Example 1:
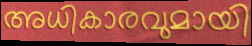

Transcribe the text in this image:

അധികാരവുമായി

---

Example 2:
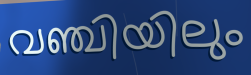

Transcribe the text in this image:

വഞ്ചിയിലും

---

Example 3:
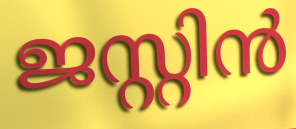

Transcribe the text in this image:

ജസ്റ്റിൻ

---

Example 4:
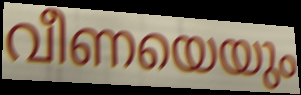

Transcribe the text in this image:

വീണയെയും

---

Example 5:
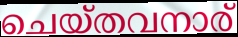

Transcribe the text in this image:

ചെയ്തവനാര്